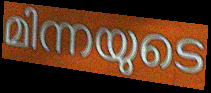
മിന്നയുടെ